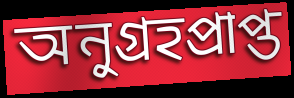
অনুগ্রহপ্রাপ্ত